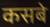
कसबे